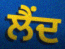
ਲੈਂਦ